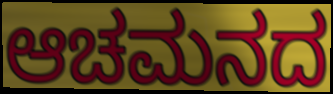
ಆಚಮನದ